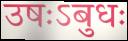
उषःऽबुधः